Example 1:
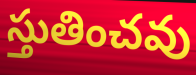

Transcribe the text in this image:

స్తుతించవు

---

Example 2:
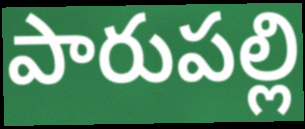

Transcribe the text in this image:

పారుపల్లి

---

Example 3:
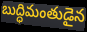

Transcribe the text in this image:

బుద్ధిమంతుడైన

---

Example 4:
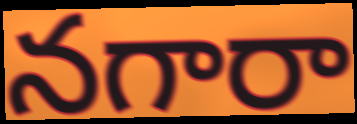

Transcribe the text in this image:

నగారా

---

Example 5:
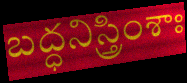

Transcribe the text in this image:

బద్ధనిస్త్రింశాః